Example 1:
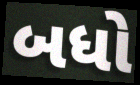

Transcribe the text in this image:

બધો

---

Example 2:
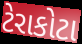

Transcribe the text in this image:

ટેરાકોટા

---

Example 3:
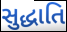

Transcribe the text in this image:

સુદ્ધાતિ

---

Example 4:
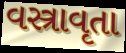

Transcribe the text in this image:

વસ્ત્રાવૃતા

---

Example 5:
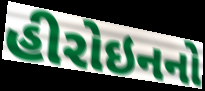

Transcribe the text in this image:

હીરોઇનનો